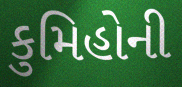
કુમિહોની